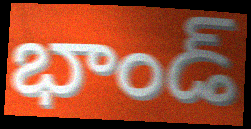
భాండ్